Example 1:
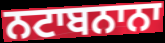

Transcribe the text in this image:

ਨਟਾਬਨਾਨਾ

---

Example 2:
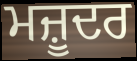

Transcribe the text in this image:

ਮਜ਼ੂਦਰ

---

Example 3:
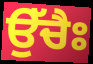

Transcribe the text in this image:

ਉੱਚੈਃ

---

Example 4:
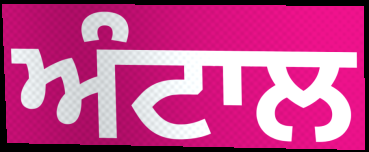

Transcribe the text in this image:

ਅੰਟਾਲ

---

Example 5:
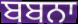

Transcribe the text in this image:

ਬਬਨਾ